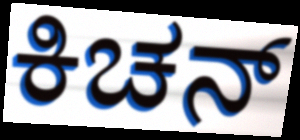
ಕಿಚನ್